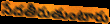
సేదతీరుతుంటారు